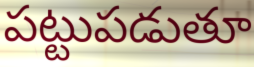
పట్టుపడుతూ